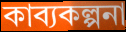
কাব্যকল্পনা